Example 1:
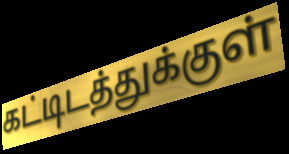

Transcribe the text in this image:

கட்டிடத்துக்குள்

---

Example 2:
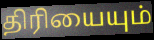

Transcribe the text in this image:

திரியையும்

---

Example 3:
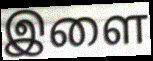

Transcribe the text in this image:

இளை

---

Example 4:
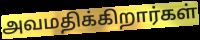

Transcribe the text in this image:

அவமதிக்கிறார்கள்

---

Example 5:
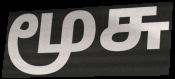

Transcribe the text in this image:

மூசு